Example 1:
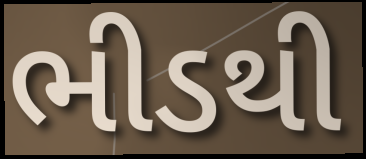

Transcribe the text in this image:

ભીડથી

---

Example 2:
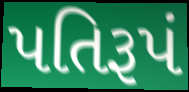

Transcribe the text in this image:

પતિરૂપં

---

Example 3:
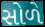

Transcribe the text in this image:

સોળે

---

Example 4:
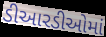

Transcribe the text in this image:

ડીઆરડીઓમાં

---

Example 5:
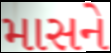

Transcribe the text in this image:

માસને